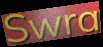
Swra